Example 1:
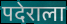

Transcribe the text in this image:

पदेराला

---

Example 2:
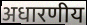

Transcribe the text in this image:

अधारणीय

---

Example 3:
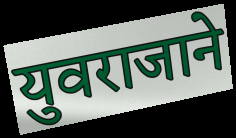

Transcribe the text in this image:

युवराजाने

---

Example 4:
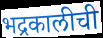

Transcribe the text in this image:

भद्रकालीची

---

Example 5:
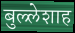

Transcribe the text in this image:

बुल्लेशाह